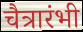
चैत्रारंभी